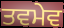
ਤਵਮੇਵ